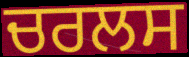
ਚਰਲਸ